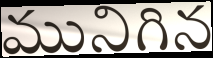
మునిగిన